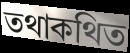
তথাকথিত